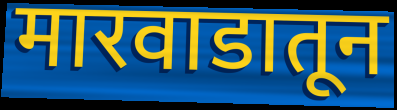
मारवाडातून